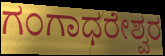
ಗಂಗಾಧರೇಶ್ವರ